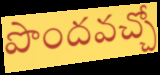
పొందవచ్చో